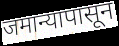
जमान्यापासून